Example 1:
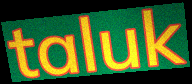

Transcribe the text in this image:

taluk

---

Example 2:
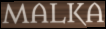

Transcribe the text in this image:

MALKA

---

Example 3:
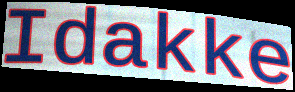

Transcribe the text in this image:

Idakke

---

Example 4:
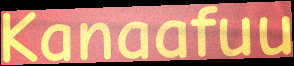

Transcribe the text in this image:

Kanaafuu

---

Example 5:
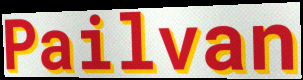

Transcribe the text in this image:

Pailvan